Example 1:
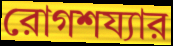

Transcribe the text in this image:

রোগশয্যার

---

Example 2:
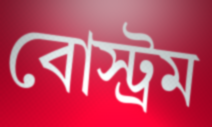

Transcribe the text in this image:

বোস্ট্রম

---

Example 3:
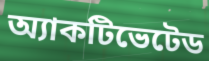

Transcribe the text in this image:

অ্যাকটিভেটেড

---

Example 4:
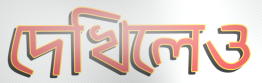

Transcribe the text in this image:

দেখিলেও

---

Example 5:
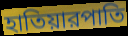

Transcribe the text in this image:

হাতিয়ারপাতি